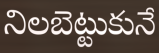
నిలబెట్టుకునే